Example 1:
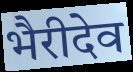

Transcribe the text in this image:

भैरीदेव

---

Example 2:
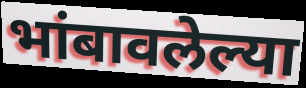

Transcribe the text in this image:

भांबावलेल्या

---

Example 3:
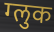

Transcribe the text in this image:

ग्लुक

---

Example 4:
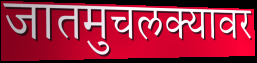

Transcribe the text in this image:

जातमुचलक्यावर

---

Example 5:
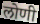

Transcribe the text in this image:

लोणी